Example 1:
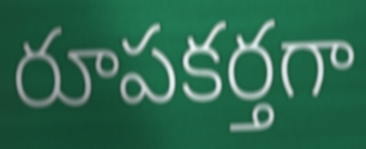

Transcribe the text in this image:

రూపకర్తగా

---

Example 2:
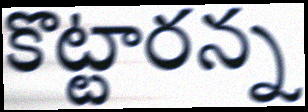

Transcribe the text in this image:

కొట్టారన్న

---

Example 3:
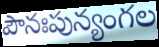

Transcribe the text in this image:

పౌనఃపున్యంగల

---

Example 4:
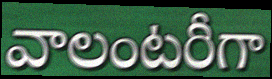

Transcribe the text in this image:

వాలంటరీగా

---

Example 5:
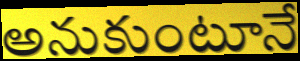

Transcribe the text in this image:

అనుకుంటూనే